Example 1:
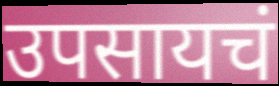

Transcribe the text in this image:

उपसायचं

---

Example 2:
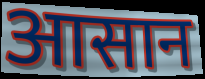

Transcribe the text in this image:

आसान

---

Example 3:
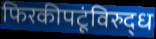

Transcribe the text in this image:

फिरकीपटूंविरुद्ध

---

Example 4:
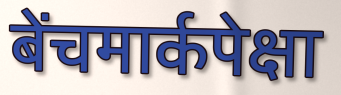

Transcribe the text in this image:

बेंचमार्कपेक्षा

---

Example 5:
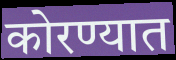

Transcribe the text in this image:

कोरण्यात